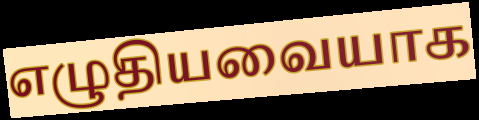
எழுதியவையாக